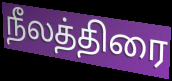
நீலத்திரை